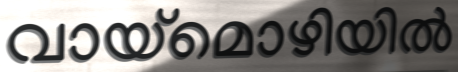
വായ്മൊഴിയിൽ